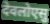
देवलोएसु